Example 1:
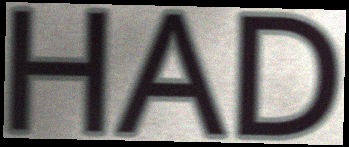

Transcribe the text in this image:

HAD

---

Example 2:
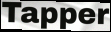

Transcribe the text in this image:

Tapper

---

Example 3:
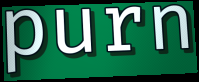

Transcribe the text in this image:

purn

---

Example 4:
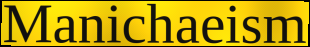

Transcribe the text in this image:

Manichaeism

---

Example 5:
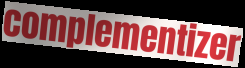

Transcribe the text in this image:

complementizer